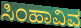
ಸಿಂಹಾವಿವ